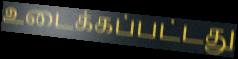
உடைக்கப்பட்டது